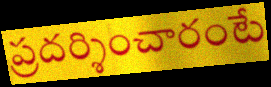
ప్రదర్శించారంటే